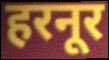
हरनूर